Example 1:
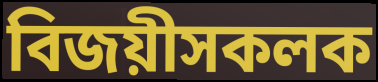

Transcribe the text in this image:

বিজয়ীসকলক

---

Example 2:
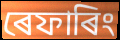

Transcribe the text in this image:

ৰেফাৰিং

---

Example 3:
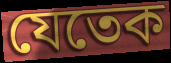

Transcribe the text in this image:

যেতেক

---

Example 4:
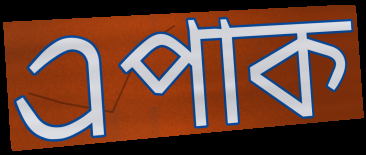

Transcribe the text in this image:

এপাক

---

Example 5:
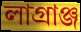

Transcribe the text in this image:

লাগ্ৰাঞ্জ